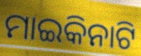
ମାଇକିନାଟି